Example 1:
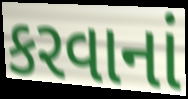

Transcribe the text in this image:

કરવાનાં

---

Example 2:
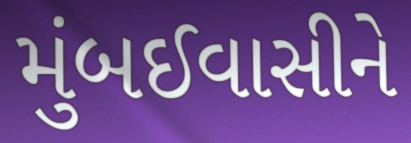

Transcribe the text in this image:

મુંબઈવાસીને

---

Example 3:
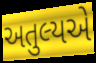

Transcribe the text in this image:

અતુલ્યએ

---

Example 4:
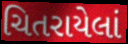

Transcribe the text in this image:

ચિતરાયેલાં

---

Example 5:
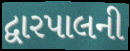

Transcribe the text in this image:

દ્વારપાલની